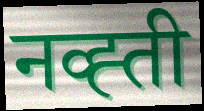
नव्ह्ती